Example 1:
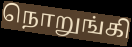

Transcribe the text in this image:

நொறுங்கி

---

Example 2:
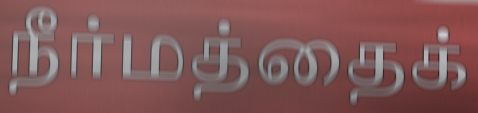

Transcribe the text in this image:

நீர்மத்தைக்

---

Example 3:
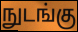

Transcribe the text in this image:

நுடங்கு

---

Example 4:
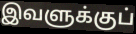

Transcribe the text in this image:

இவளுக்குப்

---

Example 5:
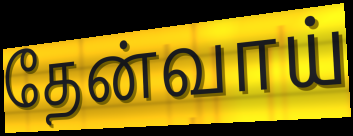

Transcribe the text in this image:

தேன்வாய்